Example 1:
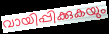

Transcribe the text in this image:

വായിപ്പിക്കുകയും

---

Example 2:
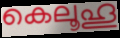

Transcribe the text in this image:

കെലൂഹൂ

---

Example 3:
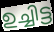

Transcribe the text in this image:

ഉച്ചിട്ട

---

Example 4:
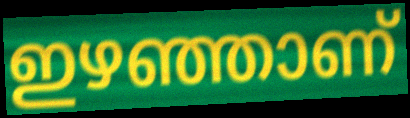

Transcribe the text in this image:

ഇഴഞ്ഞാണ്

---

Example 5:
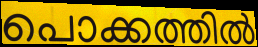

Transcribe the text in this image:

പൊക്കത്തിൽ